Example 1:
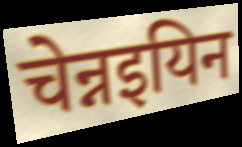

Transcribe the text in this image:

चेन्नइयिन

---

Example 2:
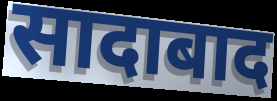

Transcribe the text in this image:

सादाबाद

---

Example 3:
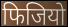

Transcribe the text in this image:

फिजियो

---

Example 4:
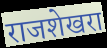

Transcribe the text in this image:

राजशेखरा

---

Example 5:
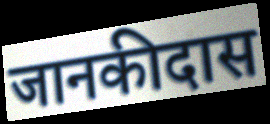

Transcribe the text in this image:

जानकीदास